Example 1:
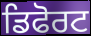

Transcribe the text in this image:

ਡਿਫੋਰਟ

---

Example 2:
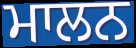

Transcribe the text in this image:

ਮਾਲਨ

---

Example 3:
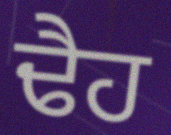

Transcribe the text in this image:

ਢੈਹ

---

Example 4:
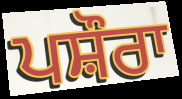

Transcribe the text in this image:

ਪਸ਼ੌਰਾ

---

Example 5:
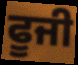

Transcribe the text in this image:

ਫੂਜੀ